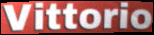
Vittorio